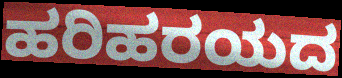
ಹರಿಹರಯದ